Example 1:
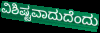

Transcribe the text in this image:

ವಿಶಿಷ್ಟವಾದುದೆಂದು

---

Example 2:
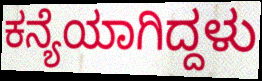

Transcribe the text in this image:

ಕನ್ಯೆಯಾಗಿದ್ದಳು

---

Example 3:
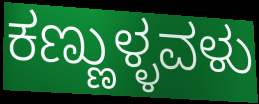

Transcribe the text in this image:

ಕಣ್ಣುಳ್ಳವಳು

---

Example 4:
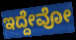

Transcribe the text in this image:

ಇದ್ದೇವೋ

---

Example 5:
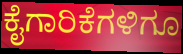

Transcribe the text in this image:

ಕೈಗಾರಿಕೆಗಳಿಗೂ